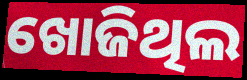
ଖୋଜିଥିଲ